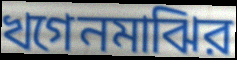
খগেনমাঝির